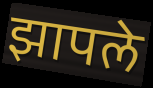
झापले